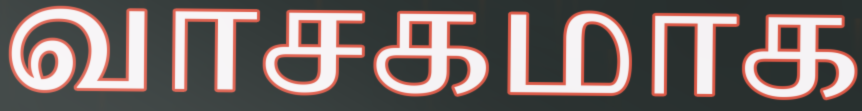
வாசகமாக